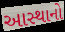
આસ્થાનો